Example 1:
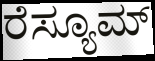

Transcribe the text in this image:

ರೆಸ್ಯೂಮ್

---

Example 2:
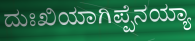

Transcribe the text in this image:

ದುಃಖಿಯಾಗಿಪ್ಪೆನಯ್ಯಾ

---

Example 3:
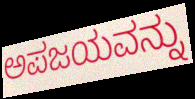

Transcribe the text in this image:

ಅಪಜಯವನ್ನು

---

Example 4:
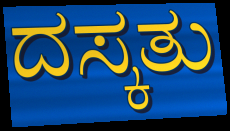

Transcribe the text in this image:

ದಸ್ಕತು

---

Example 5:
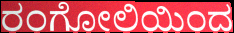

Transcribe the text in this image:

ರಂಗೋಲಿಯಿಂದ